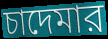
চাদেমার